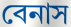
বেনাস